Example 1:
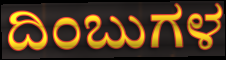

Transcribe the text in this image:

ದಿಂಬುಗಳ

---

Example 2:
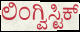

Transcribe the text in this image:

ಲಿಂಗ್ವಿಸ್ಟಿಕ್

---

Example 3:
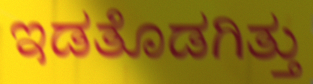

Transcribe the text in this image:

ಇಡತೊಡಗಿತ್ತು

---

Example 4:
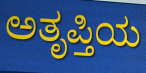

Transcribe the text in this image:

ಅತೃಪ್ತಿಯ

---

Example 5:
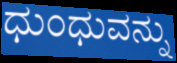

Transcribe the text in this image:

ಧುಂಧುವನ್ನು